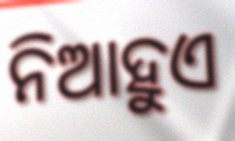
ନିଆହୁଏ